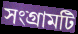
সংগ্রামটি